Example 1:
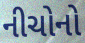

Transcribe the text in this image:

નીચોનો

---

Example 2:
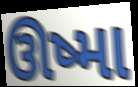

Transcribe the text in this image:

ઊષ્મા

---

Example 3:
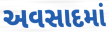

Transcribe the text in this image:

અવસાદમાં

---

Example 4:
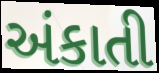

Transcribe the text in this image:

અંકાતી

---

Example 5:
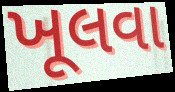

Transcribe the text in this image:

ખૂલવા